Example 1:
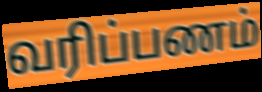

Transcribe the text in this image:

வரிப்பணம்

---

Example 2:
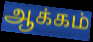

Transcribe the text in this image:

ஆக்கம்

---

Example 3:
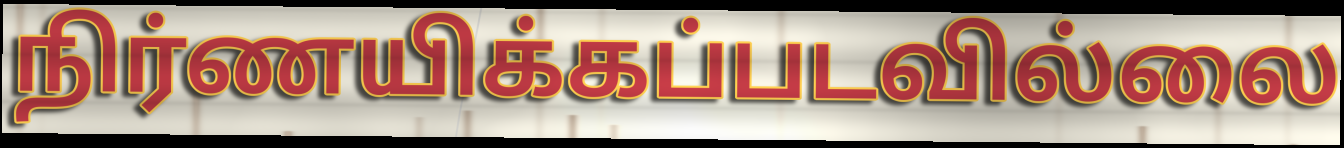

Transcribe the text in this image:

நிர்ணயிக்கப்படவில்லை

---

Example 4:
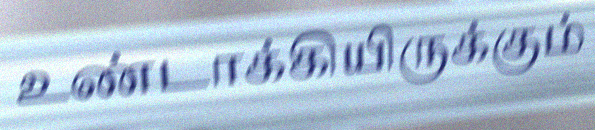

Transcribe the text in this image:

உண்டாக்கியிருக்கும்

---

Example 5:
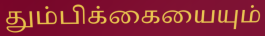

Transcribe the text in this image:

தும்பிக்கையையும்